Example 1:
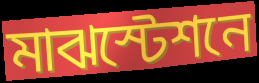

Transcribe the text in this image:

মাঝস্টেশনে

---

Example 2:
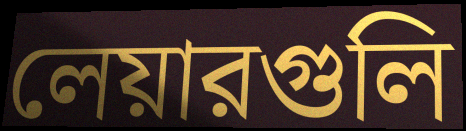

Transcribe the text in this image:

লেয়ারগুলি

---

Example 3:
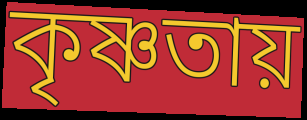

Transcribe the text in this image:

কৃষ্ণতায়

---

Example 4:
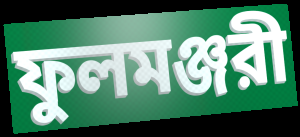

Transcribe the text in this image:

ফুলমঞ্জরী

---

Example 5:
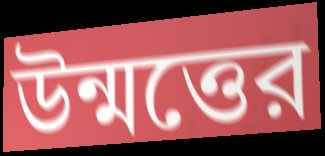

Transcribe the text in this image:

উন্মত্তের